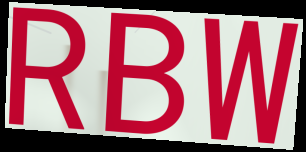
RBW